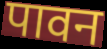
पावन